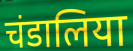
चंडालिया